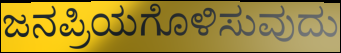
ಜನಪ್ರಿಯಗೊಳಿಸುವುದು